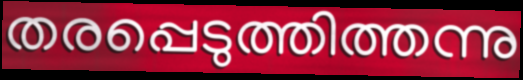
തരപ്പെടുത്തിത്തന്നു